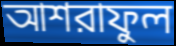
আশরাফুল